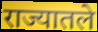
राज्यातले